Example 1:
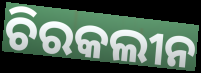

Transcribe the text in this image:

ଚିରକଲୀନ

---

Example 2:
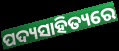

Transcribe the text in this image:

ପଦ୍ୟସାହିତ୍ୟରେ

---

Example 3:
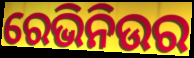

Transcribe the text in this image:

ରେଭିନିଉର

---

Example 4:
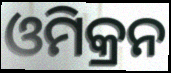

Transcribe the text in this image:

ଓମିକ୍ରନ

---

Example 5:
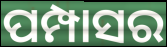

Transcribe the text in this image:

ପମ୍ପାସର